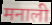
मनाली